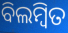
ବିଲମ୍ୱିତ